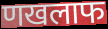
णखलाफ